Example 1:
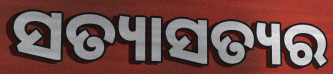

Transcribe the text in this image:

ସତ୍ୟାସତ୍ୟର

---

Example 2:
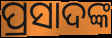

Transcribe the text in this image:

ପ୍ରସାଦଙ୍କ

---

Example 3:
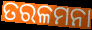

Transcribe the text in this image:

ତରଳମନା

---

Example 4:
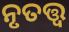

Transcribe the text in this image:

ନୃତତ୍ତ୍ୱ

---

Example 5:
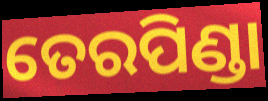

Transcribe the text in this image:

ତେରପିଣ୍ଡା